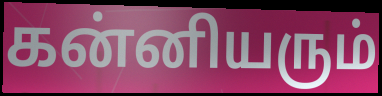
கன்னியரும்